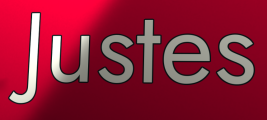
Justes